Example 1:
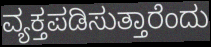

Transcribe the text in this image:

ವ್ಯಕ್ತಪಡಿಸುತ್ತಾರೆಂದು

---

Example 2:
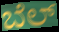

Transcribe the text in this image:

ಬೆಲ್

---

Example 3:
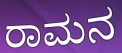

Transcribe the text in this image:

ರಾಮನ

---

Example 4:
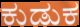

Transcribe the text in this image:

ಕುಡುಕ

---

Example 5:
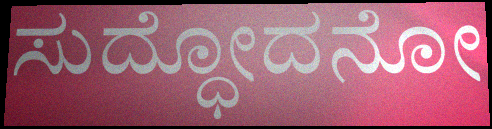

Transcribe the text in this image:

ಸುದ್ಧೋದನೋ